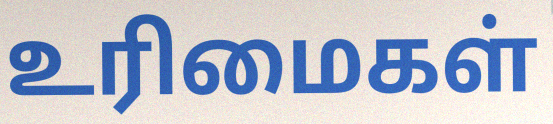
உரிமைகள்